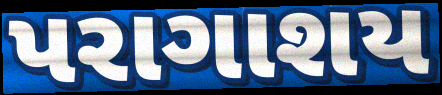
પરાગાશય